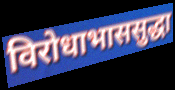
विरोधाभाससुद्धा